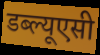
डब्ल्यूएसी